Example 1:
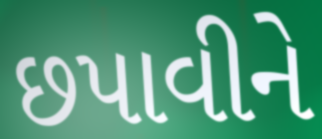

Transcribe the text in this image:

છપાવીને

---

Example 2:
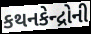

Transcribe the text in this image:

કથનકેન્દ્રોની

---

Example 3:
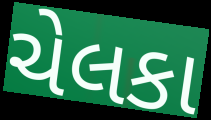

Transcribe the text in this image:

ચેલકા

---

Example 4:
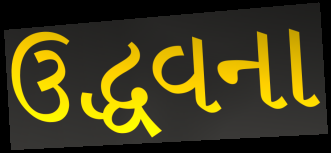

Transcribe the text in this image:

ઉદ્ધવના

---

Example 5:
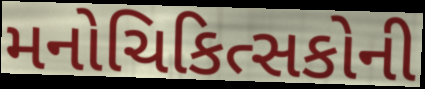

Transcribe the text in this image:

મનોચિકિત્સકોની